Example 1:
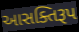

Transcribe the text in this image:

આસક્તિરૂપ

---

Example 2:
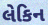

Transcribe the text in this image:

લેકિન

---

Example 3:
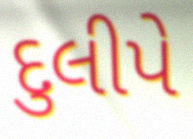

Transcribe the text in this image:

દુલીપે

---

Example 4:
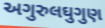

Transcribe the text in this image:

અગુરુલઘુગુણ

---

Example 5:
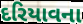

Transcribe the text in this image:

દરિયાવના